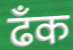
ढँक